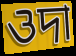
ওদা